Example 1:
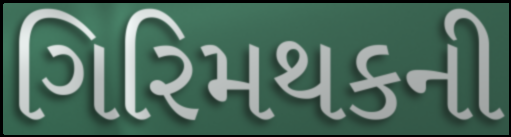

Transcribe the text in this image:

ગિરિમથકની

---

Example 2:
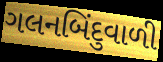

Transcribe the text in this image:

ગલનબિંદુવાળી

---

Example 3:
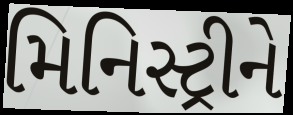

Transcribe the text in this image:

મિનિસ્ટ્રીને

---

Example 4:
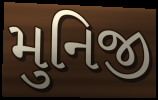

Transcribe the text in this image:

મુનિજી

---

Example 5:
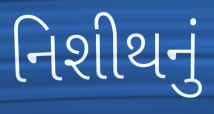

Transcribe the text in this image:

નિશીથનું